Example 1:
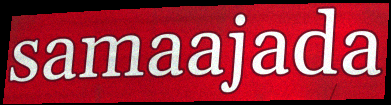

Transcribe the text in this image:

samaajada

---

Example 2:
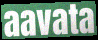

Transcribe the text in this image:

aavata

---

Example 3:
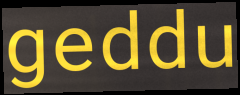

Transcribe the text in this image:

geddu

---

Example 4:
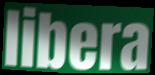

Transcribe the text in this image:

libera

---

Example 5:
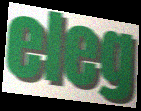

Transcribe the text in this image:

eleg